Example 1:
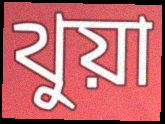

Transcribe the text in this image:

থুয়া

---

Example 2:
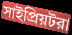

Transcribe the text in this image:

সাইপ্রিয়টরা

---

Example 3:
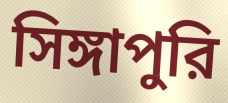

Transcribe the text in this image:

সিঙ্গাপুরি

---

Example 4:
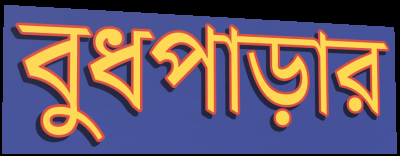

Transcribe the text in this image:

বুধপাড়ার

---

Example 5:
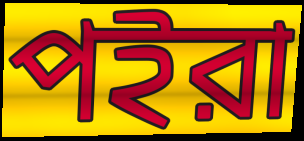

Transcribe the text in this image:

পইরা